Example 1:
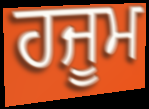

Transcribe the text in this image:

ਹਜੂਮ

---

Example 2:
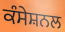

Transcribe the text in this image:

ਕੰਸੇਸ਼ਨਲ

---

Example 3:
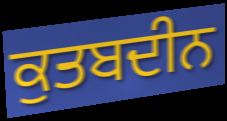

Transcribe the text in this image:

ਕੁਤਬਦੀਨ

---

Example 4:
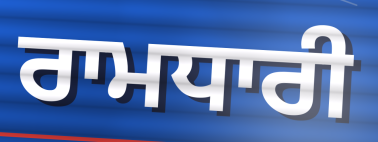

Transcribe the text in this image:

ਰਾਮਧਾਰੀ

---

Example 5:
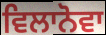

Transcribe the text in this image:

ਵਿਲਾਨੋਵਾ